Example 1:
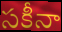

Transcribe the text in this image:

సకీనా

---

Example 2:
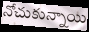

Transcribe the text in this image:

నోచుకున్నాయి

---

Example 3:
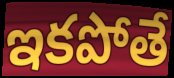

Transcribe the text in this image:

ఇకపోతే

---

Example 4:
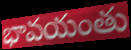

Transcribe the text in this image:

భావయంతు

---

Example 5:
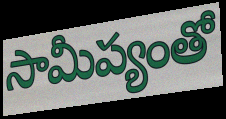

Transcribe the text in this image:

సామీప్యంతో